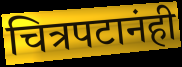
चित्रपटानंही